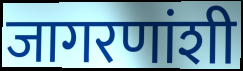
जागरणांशी